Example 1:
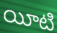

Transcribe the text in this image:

యీటి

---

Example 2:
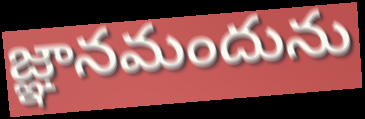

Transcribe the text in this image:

జ్ఞానమందును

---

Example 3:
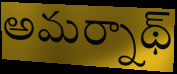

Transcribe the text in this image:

అమర్నాథ్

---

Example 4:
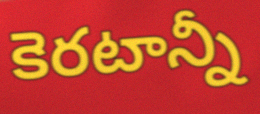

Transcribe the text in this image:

కెరటాన్నీ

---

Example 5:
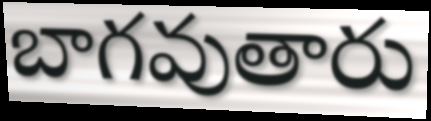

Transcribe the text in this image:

బాగవుతారు